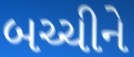
બચ્ચીને